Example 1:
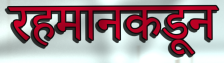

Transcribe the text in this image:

रहमानकडून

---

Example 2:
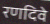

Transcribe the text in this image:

रणदिवे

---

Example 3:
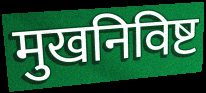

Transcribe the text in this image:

मुखनिविष्ट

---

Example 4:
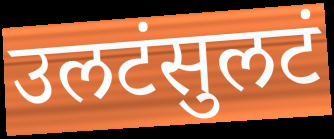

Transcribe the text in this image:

उलटंसुलटं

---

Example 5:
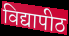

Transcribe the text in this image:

विद्यापीठ